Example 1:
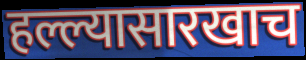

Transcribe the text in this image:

हल्ल्यासारखाच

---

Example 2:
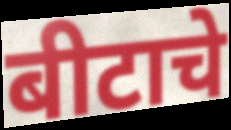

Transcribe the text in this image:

बीटाचे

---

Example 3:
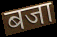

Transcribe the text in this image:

बजा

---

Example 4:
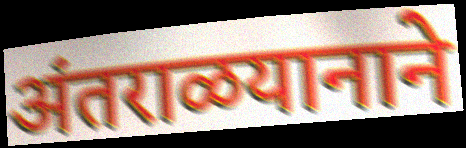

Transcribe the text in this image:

अंतराळयानाने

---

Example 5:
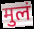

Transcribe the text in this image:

मुलं